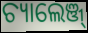
ଚ୍ୟାଲେଞ୍ଜ୍